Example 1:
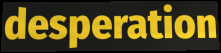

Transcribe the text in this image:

desperation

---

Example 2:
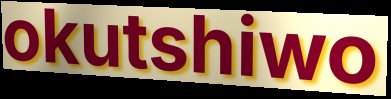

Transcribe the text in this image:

okutshiwo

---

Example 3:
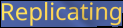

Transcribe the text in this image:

Replicating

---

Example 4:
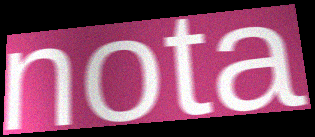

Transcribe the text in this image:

nota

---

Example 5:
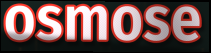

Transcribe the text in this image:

osmose